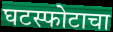
घटस्फोटाचा